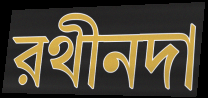
রথীনদা